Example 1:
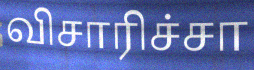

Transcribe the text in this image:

விசாரிச்சா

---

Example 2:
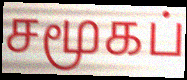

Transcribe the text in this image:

சமூகப்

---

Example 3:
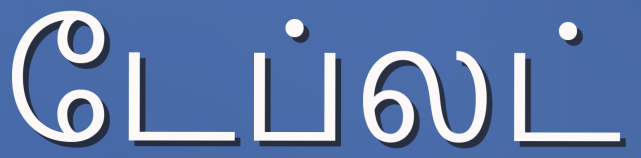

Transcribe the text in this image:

டேப்லட்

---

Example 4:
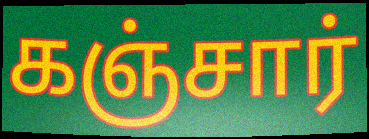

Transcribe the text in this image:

கஞ்சார்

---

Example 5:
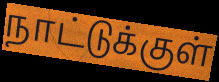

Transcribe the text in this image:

நாட்டுக்குள்